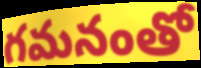
గమనంతో